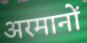
अरमानों